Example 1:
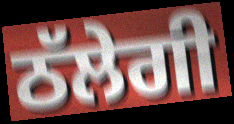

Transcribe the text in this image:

ਠੱਲੇਗੀ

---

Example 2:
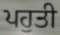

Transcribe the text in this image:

ਪਹੁਤੀ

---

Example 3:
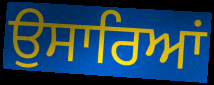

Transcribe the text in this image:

ਉਸਾਰਿਆਂ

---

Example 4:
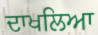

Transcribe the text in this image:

ਦਾਖਲਿਆ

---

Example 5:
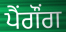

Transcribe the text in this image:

ਪੈਂਗੌਂਗ